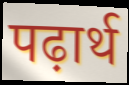
पढ़ार्थ